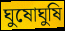
ঘুষোঘুষি